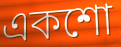
একশো